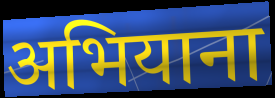
अभियाना